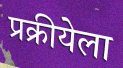
प्रक्रीयेला